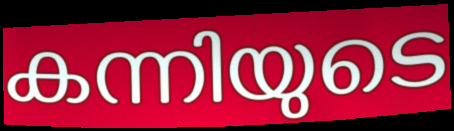
കന്നിയുടെ